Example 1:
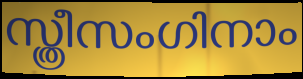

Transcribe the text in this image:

സ്ത്രീസംഗിനാം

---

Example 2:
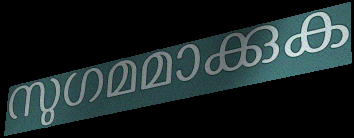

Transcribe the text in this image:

സുഗമമാക്കുക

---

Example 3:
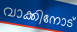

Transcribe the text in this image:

വാക്കിനോട്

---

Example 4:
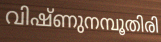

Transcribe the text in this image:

വിഷ്ണുനമ്പൂതിരി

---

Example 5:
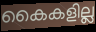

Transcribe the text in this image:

കൈകളില്ല